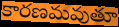
కారణమవుతూ